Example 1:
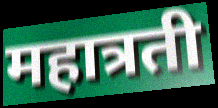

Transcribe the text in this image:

महात्रती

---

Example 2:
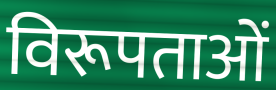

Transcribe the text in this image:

विरूपताओं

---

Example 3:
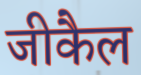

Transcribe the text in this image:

जीकैल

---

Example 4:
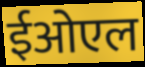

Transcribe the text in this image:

ईओएल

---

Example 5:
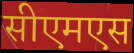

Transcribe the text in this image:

सीएमएस